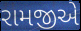
રામજીએ